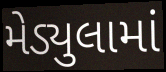
મેડ્યુલામાં